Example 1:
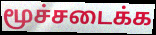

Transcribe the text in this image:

மூச்சடைக்க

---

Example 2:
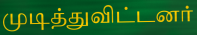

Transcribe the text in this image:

முடித்துவிட்டனர்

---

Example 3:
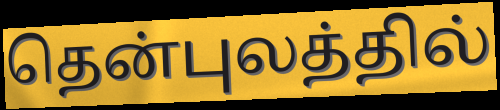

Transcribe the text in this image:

தென்புலத்தில்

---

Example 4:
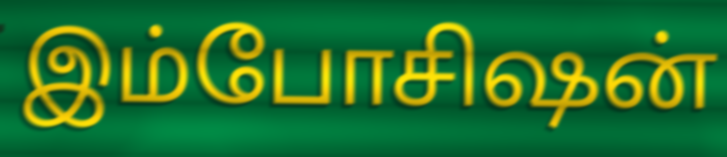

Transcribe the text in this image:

இம்போசிஷன்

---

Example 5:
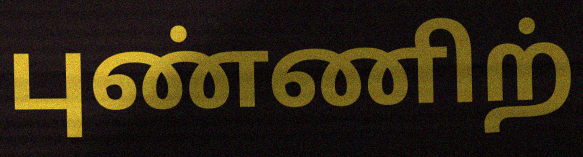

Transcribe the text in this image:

புண்ணிற்